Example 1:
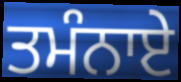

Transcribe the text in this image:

ਤਮੰਨਾਏ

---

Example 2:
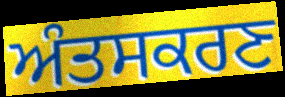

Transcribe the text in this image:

ਅੰਤਸਕਰਣ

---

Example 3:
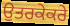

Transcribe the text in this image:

ਉਤਰਕੇਕਰੇ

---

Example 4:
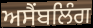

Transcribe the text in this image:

ਅਸੈਂਬਲਿੰਗ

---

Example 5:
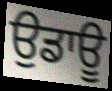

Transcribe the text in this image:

ਉਡਾਊ